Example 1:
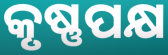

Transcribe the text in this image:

କୃଷ୍ଣପକ୍ଷ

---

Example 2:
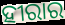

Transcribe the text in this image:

ହୀରାର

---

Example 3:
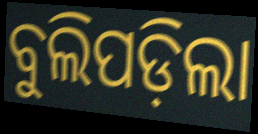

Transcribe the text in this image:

ବୁଲିପଡ଼ିଲା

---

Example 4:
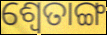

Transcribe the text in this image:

ଶ୍ୱେତାଙ୍ଗ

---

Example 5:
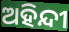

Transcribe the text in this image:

ଅହିନ୍ଦୀ